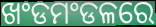
ଖଂଡମଂଡଳରେ